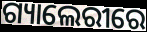
ଗ୍ୟାଲେରୀରେ